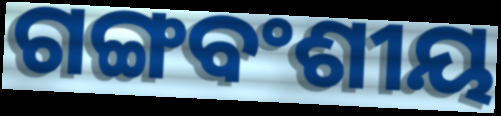
ଗଙ୍ଗବଂଶୀୟ